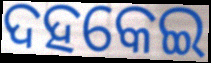
ଦହକେଇ